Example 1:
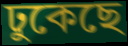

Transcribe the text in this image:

ঢুকেছে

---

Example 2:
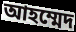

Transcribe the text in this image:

আহম্মেদ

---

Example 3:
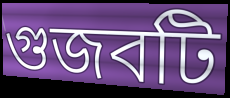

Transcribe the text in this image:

গুজবটি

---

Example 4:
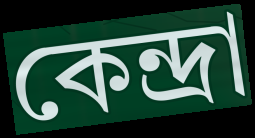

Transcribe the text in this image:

কেন্দ্রা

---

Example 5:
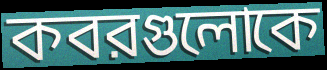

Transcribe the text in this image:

কবরগুলোকে